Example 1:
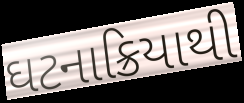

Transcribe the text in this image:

ઘટનાક્રિયાથી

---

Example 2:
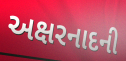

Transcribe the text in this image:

અક્ષરનાદની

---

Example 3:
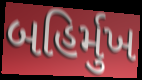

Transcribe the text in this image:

બહિર્મુખ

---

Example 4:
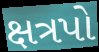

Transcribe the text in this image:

ક્ષત્રપો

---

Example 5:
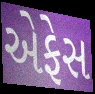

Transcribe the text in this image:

એફેસ